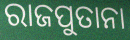
ରାଜପୁତାନା